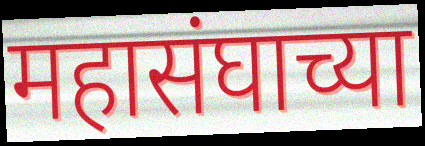
महासंघाच्या